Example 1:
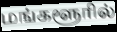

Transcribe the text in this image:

மங்களூரில்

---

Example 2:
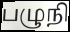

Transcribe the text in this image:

பழுநி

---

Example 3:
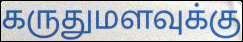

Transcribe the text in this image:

கருதுமளவுக்கு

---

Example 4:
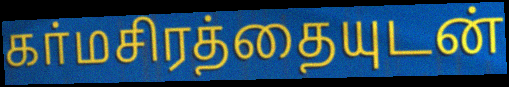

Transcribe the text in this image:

கர்மசிரத்தையுடன்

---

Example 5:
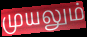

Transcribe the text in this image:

முயலும்